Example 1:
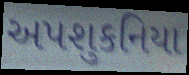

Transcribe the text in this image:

અપશુકનિયા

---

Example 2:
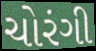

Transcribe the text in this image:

ચોરંગી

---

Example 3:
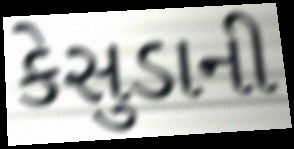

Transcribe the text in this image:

કેસુડાની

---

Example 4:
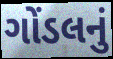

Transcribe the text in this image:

ગોંડલનું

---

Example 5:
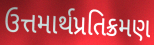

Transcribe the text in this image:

ઉત્તમાર્થપ્રતિક્રમણ